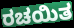
ರಚಯಿತ